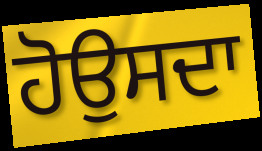
ਹੋਉਸਦਾ